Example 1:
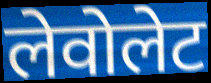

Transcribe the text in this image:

लेवोलेट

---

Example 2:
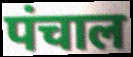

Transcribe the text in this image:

पंचाल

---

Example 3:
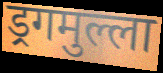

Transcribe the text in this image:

ड्रगमुल्ला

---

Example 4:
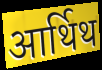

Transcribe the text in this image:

आर्थिथ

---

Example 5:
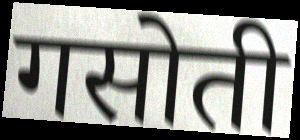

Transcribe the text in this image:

गसोती